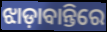
ଝାଡ଼ାବାନ୍ତିରେ